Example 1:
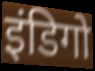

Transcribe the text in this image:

इंडिगो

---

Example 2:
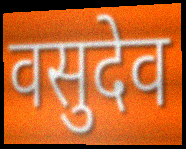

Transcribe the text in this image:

वसुदेव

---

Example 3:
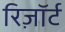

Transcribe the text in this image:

रिज़ॉर्ट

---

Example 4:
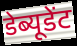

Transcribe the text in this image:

डेब्यूडेंट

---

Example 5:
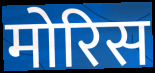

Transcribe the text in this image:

मोरिस